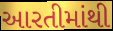
આરતીમાંથી